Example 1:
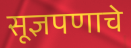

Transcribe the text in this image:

सूज्ञपणाचे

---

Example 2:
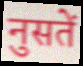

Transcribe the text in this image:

नुसतें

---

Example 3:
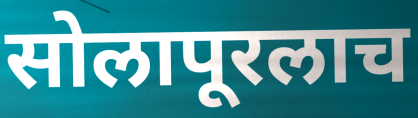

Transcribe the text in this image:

सोलापूरलाच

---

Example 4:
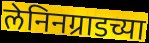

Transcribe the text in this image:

लेनिनग्राडच्या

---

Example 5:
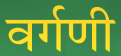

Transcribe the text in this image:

वर्गणी